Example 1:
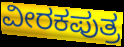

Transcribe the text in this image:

ವೀರಕಪುತ್ರ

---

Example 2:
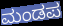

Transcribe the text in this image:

ಮಂಡಪ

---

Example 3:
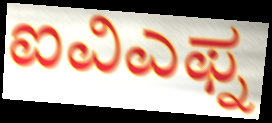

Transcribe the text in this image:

ಐವಿಎಫ್ನ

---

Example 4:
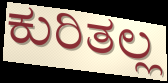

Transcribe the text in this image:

ಕುರಿತಲ್ಲ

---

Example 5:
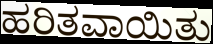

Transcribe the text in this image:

ಹರಿತವಾಯಿತು